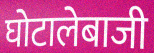
घोटालेबाजी